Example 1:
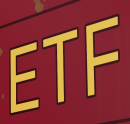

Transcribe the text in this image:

ETF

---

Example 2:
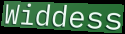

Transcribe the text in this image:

Widdess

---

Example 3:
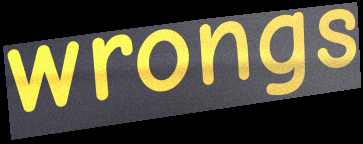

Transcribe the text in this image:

wrongs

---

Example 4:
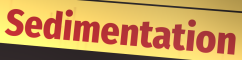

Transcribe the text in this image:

Sedimentation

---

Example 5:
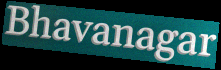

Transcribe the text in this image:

Bhavanagar